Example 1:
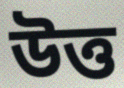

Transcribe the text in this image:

উত্ত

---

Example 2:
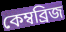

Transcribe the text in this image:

কেম্বব্ৰিজ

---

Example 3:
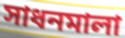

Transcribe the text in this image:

সাধনমালা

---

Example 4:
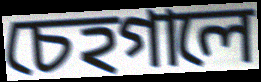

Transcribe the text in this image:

চেহগালে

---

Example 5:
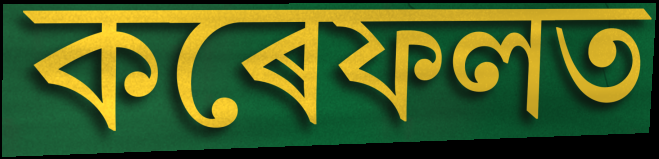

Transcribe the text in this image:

কৰেফলত